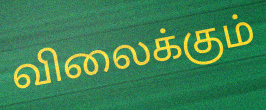
விலைக்கும்